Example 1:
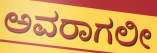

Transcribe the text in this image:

ಅವರಾಗಲೀ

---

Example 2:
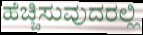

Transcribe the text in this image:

ಹೆಚ್ಚಿಸುವುದರಲ್ಲಿ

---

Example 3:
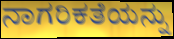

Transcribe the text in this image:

ನಾಗರಿಕತೆಯನ್ನು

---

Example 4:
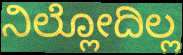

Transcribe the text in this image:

ನಿಲ್ಲೋದಿಲ್ಲ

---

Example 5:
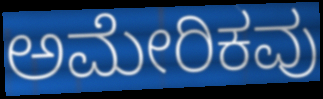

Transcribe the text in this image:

ಅಮೇರಿಕವು